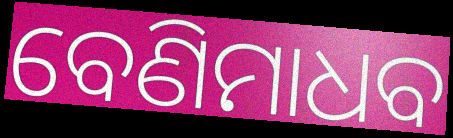
ବେଣିମାଧବ